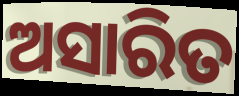
ଅସାରିତ